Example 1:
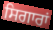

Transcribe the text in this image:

ਸਿਗਾਰਾਂ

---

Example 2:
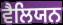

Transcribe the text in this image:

ਵੈਲਿਯਨ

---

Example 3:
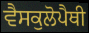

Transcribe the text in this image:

ਵੈਸਕੁਲੋਪੈਥੀ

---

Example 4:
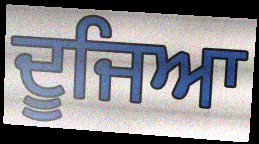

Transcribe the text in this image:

ਦੂਜਿਆ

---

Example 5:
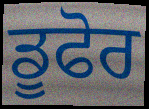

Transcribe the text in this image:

ਡੂਫੋਰ